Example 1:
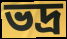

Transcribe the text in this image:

ভদ্ৰ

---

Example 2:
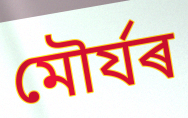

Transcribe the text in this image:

মৌৰ্যৰ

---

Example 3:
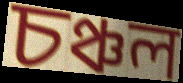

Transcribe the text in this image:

চঞ্চল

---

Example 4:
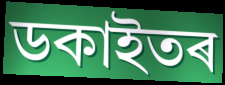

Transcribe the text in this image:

ডকাইতৰ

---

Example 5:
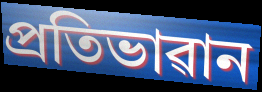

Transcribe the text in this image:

প্ৰতিভাৱান